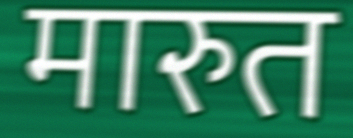
मारुत